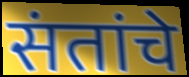
संतांचे